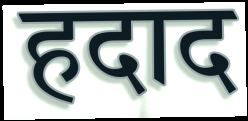
हदाद